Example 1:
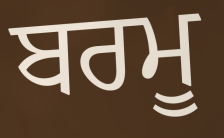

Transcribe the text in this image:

ਬਰਮੂ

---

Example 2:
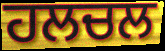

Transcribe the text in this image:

ਹਲਚਲ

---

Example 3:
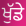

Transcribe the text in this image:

ਖੁੱਡੇ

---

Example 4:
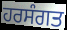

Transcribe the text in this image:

ਹਰਸੰਗਤ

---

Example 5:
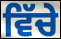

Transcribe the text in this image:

ਵਿੱਚੇ